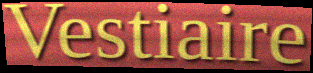
Vestiaire